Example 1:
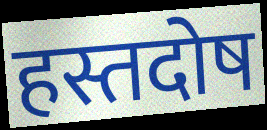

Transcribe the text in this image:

हस्तदोष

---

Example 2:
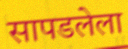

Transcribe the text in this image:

सापडलेला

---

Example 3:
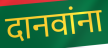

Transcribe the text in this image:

दानवांना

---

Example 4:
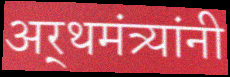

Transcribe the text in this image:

अर्थमंत्र्यांनी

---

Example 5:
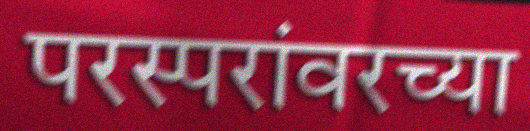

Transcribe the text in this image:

परस्परांवरच्या